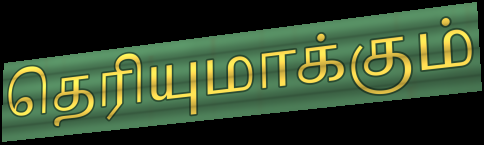
தெரியுமாக்கும்